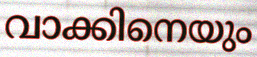
വാക്കിനെയും